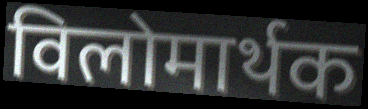
विलोमार्थक